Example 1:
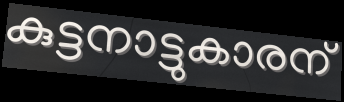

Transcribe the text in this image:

കുട്ടനാട്ടുകാരന്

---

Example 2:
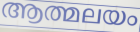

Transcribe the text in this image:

ആത്മലയം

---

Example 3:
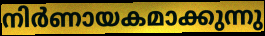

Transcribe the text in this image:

നിർണായകമാക്കുന്നു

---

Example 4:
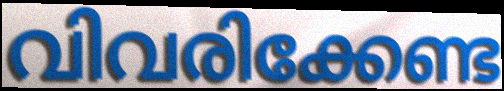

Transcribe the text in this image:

വിവരിക്കേണ്ട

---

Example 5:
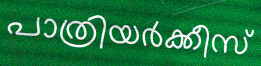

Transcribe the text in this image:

പാത്രിയർക്കീസ്